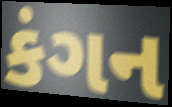
કંગન